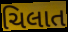
ચિલાત